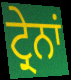
ਟ੍ਰੇਨਾਂ